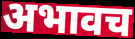
अभावच